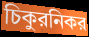
চিকুরনিকর